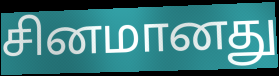
சினமானது